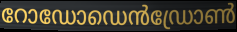
റോഡോഡെൻഡ്രോൺ